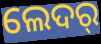
ଲେଦର୍